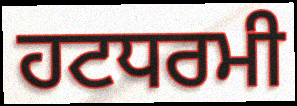
ਹਟਧਰਮੀ